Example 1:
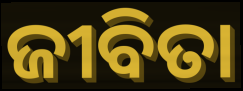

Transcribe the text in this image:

ଜୀବିତା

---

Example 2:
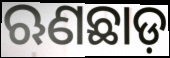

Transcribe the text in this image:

ଋଣଛାଡ଼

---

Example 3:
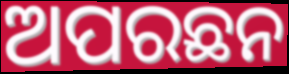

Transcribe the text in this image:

ଅପରଛନ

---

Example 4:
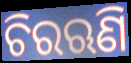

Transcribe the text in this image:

ଚିରଋଣି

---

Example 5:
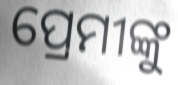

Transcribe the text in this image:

ପ୍ରେମୀଙ୍କୁ